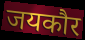
जयकौर